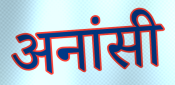
अनांसी